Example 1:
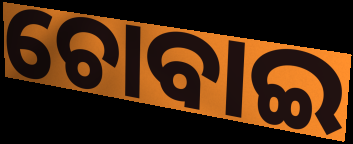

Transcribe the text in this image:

ଚୋବାଇ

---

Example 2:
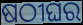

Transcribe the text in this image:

ଷଠୀଘର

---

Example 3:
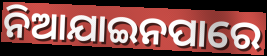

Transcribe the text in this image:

ନିଆଯାଇନପାରେ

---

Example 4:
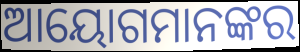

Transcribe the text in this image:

ଆୟୋଗମାନଙ୍କର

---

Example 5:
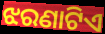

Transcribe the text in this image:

ଝରଣାଟିଏ